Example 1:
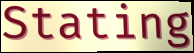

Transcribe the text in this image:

Stating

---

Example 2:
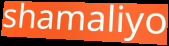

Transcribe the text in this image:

shamaliyo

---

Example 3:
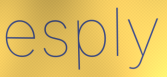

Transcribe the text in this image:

esply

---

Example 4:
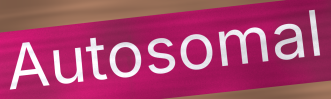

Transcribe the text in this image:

Autosomal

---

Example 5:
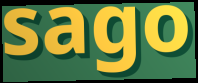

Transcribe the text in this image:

sago